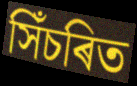
সিঁচৰিত